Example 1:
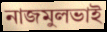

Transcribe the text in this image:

নাজমুলভাই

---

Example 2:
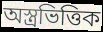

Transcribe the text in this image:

অস্ত্রভিত্তিক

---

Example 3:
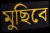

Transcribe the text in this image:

মুছিবে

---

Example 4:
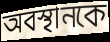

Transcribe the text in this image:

অবস্থানকে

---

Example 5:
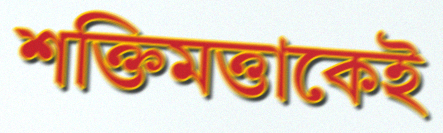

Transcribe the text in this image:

শক্তিমত্তাকেই